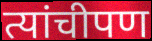
त्यांचीपण